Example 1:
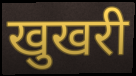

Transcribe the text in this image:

खुखरी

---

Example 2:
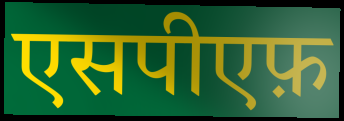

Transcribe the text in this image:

एसपीएफ़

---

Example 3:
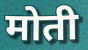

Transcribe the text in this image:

मोती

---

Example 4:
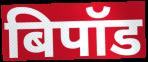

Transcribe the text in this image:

बिपॉड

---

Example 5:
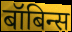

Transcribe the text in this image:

बॉबिन्स